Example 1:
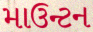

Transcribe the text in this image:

માઉન્ટન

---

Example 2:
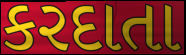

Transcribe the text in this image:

કરદાતા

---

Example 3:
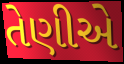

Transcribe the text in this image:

તેણીએ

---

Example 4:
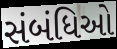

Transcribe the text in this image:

સંબંધિઓ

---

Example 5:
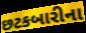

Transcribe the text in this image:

છટકબારીના